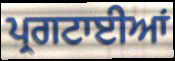
ਪ੍ਰਗਟਾਈਆਂ